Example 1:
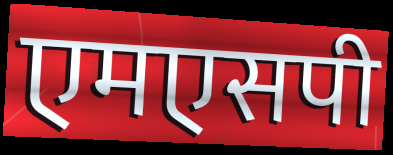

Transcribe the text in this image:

एमएसपी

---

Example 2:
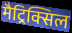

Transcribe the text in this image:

मैट्रिक्सिल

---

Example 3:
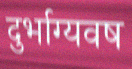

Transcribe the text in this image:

दुर्भाग्यवष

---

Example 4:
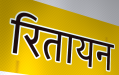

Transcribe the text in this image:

रितायन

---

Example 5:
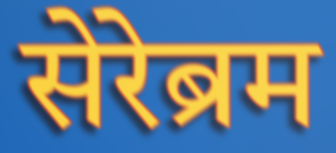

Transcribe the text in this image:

सेरेब्रम